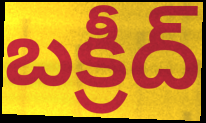
బక్రీద్